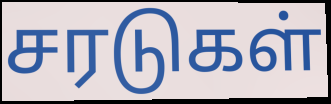
சரடுகள்